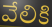
వేలికి